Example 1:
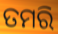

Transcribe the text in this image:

ତମରି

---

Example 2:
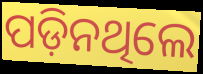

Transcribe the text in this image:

ପଡ଼ିନଥିଲେ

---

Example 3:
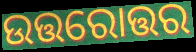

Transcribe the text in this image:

ଉତ୍ତରୋତ୍ତର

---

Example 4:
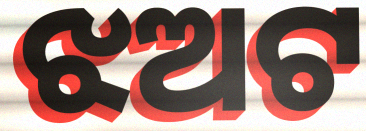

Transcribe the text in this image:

ଝଅଟ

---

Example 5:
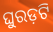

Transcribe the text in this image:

ଘୁରଡ଼ଟି